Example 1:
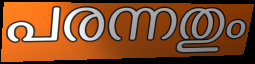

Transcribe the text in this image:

പരന്നതും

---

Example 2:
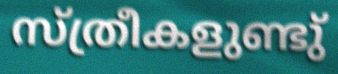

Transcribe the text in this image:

സ്ത്രീകളുണ്ടു്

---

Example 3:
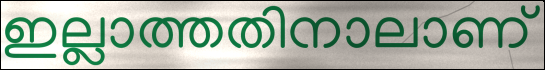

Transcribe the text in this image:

ഇല്ലാത്തതിനാലാണ്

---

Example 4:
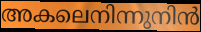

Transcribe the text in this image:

അകലെനിന്നുനിൻ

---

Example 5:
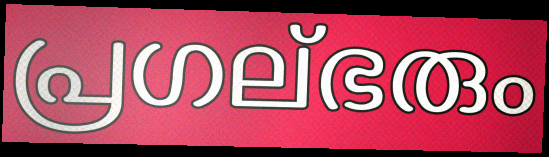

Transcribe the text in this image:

പ്രഗല്ഭരും